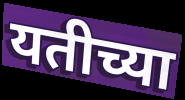
यतीच्या